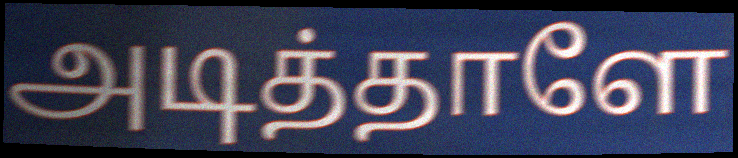
அடித்தாளே